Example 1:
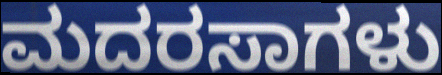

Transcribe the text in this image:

ಮದರಸಾಗಳು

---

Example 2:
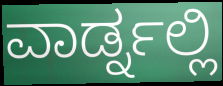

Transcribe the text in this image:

ವಾರ್ಡ್ನಲ್ಲಿ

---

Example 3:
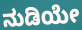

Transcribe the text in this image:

ನುಡಿಯೇ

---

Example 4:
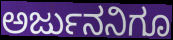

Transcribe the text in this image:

ಅರ್ಜುನನಿಗೂ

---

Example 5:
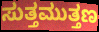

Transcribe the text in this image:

ಸುತ್ತಮುತ್ತಣ